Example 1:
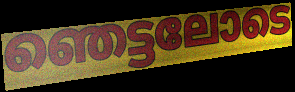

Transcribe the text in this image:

ഞെട്ടലോടെ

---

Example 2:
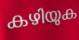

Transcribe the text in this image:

കഴിയുക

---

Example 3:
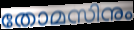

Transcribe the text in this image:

തോമസിനും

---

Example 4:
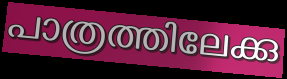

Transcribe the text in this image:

പാത്രത്തിലേക്കു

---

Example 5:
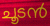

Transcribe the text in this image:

ചൂടൻ